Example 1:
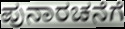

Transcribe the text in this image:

ಪುನಾರಚನೆಗೆ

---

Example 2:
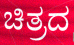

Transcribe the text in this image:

ಚಿತ್ರದ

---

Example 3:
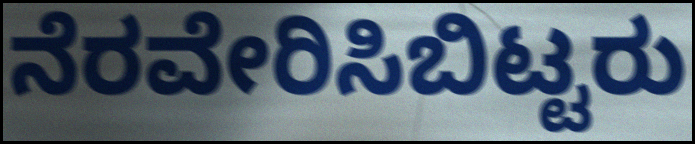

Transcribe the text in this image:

ನೆರವೇರಿಸಿಬಿಟ್ಟರು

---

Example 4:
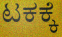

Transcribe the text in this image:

ಟಕಕ್ಕೆ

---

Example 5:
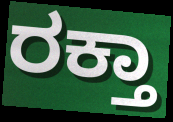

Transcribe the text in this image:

ರಕ್ತಾ